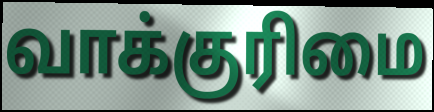
வாக்குரிமை